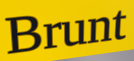
Brunt